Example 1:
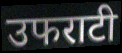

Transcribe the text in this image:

उफराटी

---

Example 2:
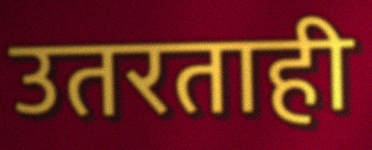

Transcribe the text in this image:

उतरताही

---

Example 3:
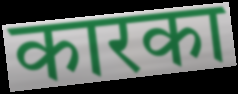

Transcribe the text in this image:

कारका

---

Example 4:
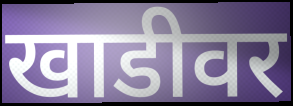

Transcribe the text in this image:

खाडीवर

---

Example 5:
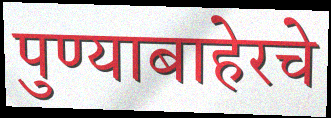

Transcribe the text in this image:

पुण्याबाहेरचे